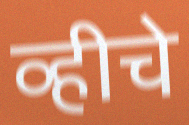
व्हीचे